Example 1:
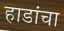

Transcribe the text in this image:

हाडांचा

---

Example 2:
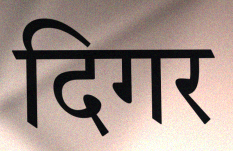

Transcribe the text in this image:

दिगर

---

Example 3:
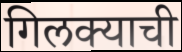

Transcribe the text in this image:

गिलक्याची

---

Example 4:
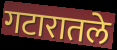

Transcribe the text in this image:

गटारातले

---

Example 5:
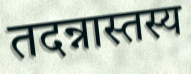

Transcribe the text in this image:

तदन्नास्तस्य